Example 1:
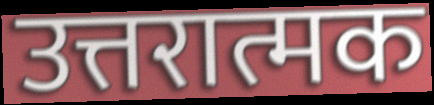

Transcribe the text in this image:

उत्तरात्मक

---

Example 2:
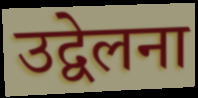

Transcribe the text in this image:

उद्वेलना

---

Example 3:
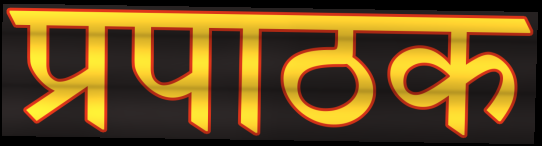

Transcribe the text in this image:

प्रपाठक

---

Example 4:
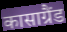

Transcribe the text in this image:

कासाग्रैंड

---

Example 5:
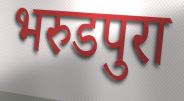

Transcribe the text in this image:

भरुडपुरा